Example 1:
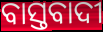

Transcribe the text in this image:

ବାସ୍ତବାଦୀ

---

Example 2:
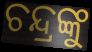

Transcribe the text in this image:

ଚନ୍ଦ୍ରଙ୍କୁ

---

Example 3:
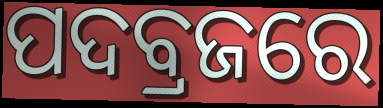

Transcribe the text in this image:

ପଦବ୍ରଜରେ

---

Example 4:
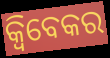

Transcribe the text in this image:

କ୍ୱିବେକର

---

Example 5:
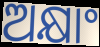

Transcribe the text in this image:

ଅକ୍ଷାଂ